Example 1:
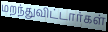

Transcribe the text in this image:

மறந்துவிட்டார்கள்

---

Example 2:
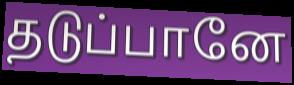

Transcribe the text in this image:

தடுப்பானே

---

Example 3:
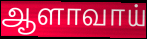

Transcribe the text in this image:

ஆளாவாய்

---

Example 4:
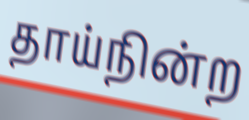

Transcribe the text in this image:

தாய்நின்ற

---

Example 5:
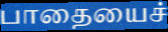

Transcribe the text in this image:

பாதையைச்